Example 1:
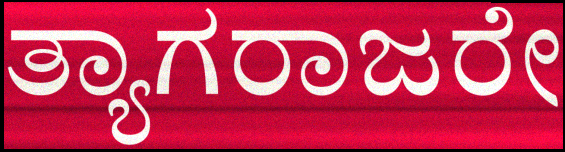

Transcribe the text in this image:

ತ್ಯಾಗರಾಜರೇ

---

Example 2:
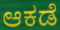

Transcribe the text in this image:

ಆಕಡೆ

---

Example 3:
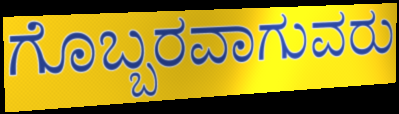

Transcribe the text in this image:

ಗೊಬ್ಬರವಾಗುವರು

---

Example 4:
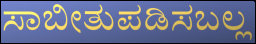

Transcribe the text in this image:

ಸಾಬೀತುಪಡಿಸಬಲ್ಲ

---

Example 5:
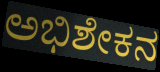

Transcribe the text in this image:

ಅಭಿಶೇಕನ